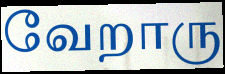
வேறாரு